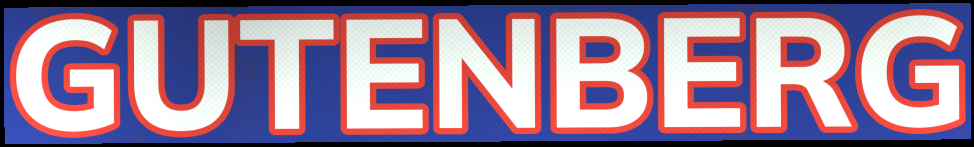
GUTENBERG